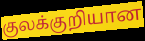
குலக்குறியான